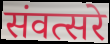
संवत्सरे